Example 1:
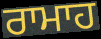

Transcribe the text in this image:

ਰਾਮਾਹ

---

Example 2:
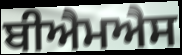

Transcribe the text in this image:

ਬੀਐਮਐਸ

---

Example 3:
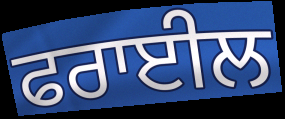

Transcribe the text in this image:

ਫਰਾਈਲ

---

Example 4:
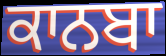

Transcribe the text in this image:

ਕਾਨਬਾ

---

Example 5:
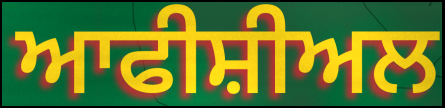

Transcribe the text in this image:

ਆਫੀਸ਼ੀਅਲ